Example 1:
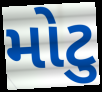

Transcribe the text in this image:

મોટુ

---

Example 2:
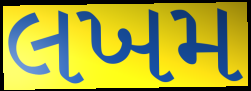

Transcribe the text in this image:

લખમ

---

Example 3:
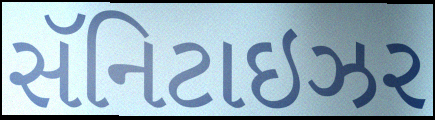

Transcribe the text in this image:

સૅનિટાઇઝર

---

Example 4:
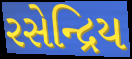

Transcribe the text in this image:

રસેન્દ્રિય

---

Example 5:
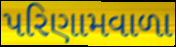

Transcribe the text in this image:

પરિણામવાળા